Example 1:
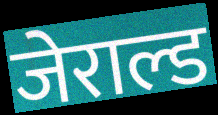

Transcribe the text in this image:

जेराल्ड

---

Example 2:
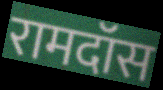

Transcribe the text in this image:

रामदॉस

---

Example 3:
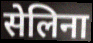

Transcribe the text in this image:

सेलिना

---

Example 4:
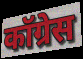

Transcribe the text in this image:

कॉग्रेस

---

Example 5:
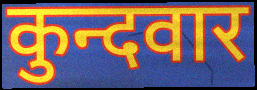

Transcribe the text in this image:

कुन्दवार